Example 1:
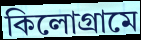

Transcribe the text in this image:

কিলোগ্রামে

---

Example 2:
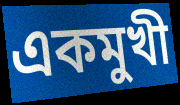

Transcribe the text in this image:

একমুখী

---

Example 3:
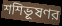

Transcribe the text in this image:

শশিভূষণর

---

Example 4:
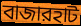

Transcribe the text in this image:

বাজারহাট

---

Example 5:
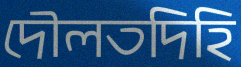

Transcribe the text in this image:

দৌলতদিহি